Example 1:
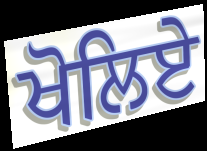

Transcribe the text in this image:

ਖੋਲਿਏ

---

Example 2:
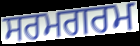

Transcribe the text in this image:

ਸਰਮਗਰਮ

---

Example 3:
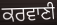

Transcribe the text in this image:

ਕਰਵਾਣੀ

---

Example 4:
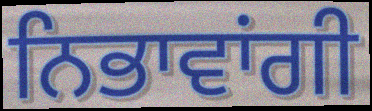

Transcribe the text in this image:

ਨਿਭਾਵਾਂਗੀ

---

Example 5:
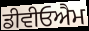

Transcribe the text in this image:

ਡੀਵੀਓਐਮ